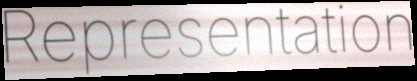
Representation